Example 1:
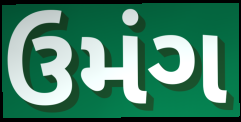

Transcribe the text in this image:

ઉમંગ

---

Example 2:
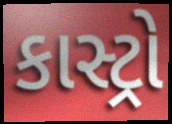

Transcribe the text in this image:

કાસ્ટ્રો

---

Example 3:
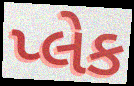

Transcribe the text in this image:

પ્લેક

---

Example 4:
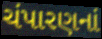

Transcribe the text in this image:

ચંપારણનાં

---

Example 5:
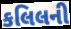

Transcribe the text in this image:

કલિલની